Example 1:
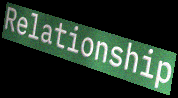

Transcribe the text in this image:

Relationship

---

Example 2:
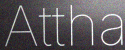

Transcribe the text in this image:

Attha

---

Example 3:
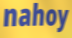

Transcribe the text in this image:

nahoy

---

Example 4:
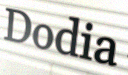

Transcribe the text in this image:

Dodia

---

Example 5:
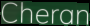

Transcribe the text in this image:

Cheran